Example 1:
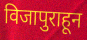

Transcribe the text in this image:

विजापुराहून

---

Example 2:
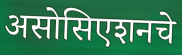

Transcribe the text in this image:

असोसिएशनचे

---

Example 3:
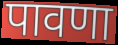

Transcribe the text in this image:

पावणा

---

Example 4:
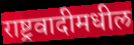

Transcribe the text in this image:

राष्ट्रवादीमधील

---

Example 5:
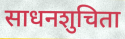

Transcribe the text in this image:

साधनशुचिता